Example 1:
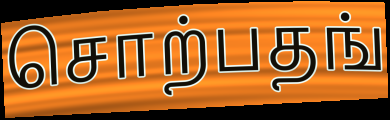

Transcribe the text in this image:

சொற்பதங்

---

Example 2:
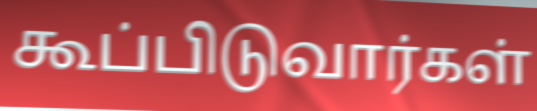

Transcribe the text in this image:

கூப்பிடுவார்கள்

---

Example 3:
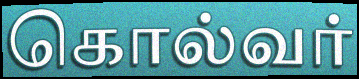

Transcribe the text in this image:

கொல்வர்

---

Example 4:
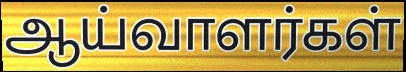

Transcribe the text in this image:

ஆய்வாளர்கள்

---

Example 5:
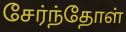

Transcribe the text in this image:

சேர்ந்தோள்